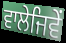
ਵਾਲੇਜਿਵੇਂ